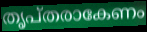
തൃപ്തരാകേണം